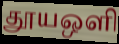
தூயஒளி